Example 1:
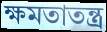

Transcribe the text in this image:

ক্ষমতাতন্ত্র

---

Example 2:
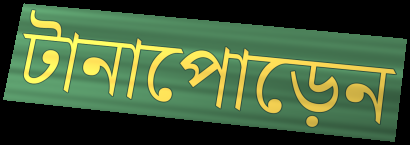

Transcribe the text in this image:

টানাপোড়েন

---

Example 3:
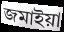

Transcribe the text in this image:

জমাইয়া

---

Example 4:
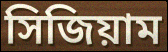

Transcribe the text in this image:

সিজিয়াম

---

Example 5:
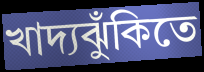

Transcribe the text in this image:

খাদ্যঝুঁকিতে